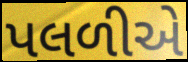
પલળીએ